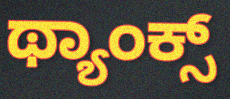
ಥ್ಯಾಂಕ್ಸ್